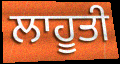
ਲਾਹੂਤੀ